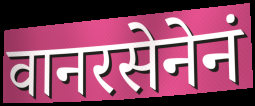
वानरसेनेनं